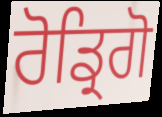
ਰੋਡ੍ਰਿਗੋ